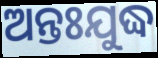
ଅନ୍ତଃଯୁଦ୍ଧ